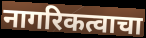
नागरिकत्वाचा